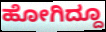
ಹೋಗಿದ್ದೂ